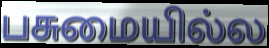
பசுமையில்ல